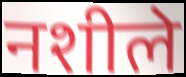
नशीले